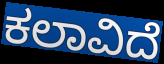
ಕಲಾವಿದೆ